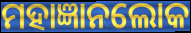
ମହାଜ୍ଞାନଲୋକ